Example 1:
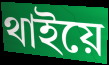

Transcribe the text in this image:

থাইয়ে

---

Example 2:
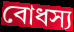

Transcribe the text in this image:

বোধস্য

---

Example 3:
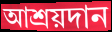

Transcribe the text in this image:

আশ্রয়দান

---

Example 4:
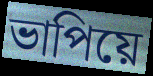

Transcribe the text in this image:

ভাপিয়ে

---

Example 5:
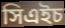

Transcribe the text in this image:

সিএইচ